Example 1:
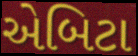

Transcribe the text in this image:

એબિટા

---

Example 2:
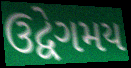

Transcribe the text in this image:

ઉદ્વેગમય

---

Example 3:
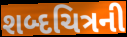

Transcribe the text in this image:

શબ્દચિત્રની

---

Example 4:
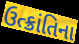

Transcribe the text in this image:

ઉત્ક્રાંતિના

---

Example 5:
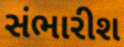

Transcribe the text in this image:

સંભારીશ